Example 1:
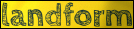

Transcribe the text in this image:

landform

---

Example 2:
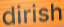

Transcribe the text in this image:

dirish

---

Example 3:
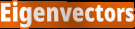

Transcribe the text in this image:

Eigenvectors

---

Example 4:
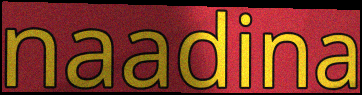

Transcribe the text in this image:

naadina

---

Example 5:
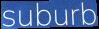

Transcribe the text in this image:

suburb